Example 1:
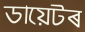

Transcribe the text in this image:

ডায়েটৰ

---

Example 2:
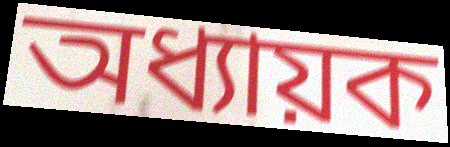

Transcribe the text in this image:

অধ্যায়ক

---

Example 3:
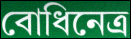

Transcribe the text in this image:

বোধিনেত্ৰ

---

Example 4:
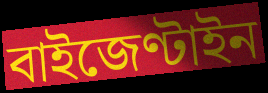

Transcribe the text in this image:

বাইজেণ্টাইন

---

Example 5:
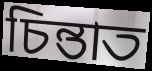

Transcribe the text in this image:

চিন্তাত